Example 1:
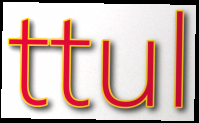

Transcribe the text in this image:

ttul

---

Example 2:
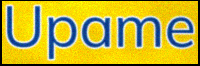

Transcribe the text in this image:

Upame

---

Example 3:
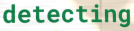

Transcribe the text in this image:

detecting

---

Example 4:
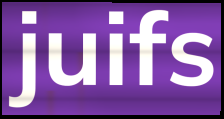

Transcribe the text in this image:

juifs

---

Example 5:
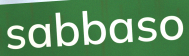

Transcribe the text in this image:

sabbaso